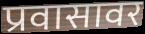
प्रवासावर